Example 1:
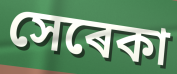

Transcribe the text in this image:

সেৰেকা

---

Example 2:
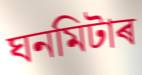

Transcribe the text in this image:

ঘনমিটাৰ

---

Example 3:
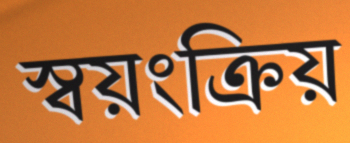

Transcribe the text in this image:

স্বয়ংক্ৰিয়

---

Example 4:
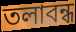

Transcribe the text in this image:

তলাবন্ধ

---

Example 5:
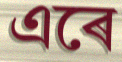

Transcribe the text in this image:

এৰে